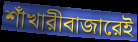
শাঁখারীবাজারেই